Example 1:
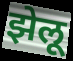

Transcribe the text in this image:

झेलू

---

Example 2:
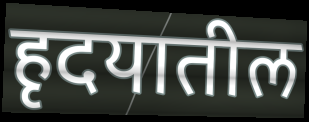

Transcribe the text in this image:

हृदयातील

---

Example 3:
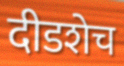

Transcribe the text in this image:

दीडशेच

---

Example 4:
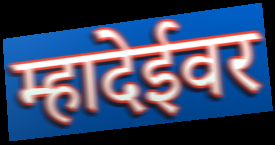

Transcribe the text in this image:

म्हादेईवर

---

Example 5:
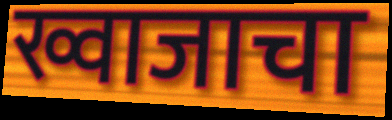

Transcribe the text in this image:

ख्वाजाचा